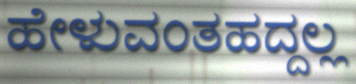
ಹೇಳುವಂತಹದ್ದಲ್ಲ